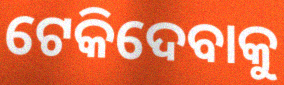
ଟେକିଦେବାକୁ